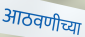
आठवणीच्या